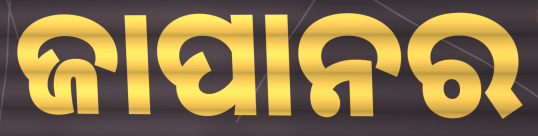
ଜାପାନର